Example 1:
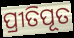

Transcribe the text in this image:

ପ୍ରୀତିପୂତ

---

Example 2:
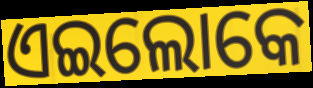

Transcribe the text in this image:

ଏଇଲୋକେ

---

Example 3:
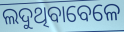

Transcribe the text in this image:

ଲଦୁଥିବାବେଳେ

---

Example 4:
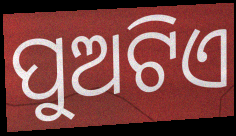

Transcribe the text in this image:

ପୁଅଟିଏ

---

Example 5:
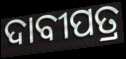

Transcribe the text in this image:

ଦାବୀପତ୍ର